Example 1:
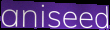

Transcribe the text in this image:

aniseed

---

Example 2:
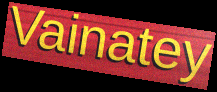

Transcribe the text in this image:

Vainatey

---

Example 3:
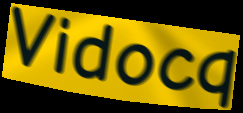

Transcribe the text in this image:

Vidocq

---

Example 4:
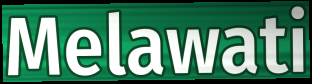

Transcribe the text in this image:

Melawati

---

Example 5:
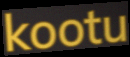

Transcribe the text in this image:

kootu